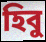
হিবু